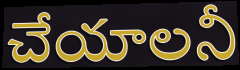
చేయాలనీ